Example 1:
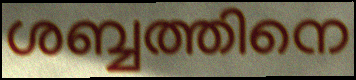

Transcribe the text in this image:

ശബ്ബത്തിനെ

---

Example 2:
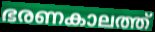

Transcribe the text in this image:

ഭരണകാലത്ത്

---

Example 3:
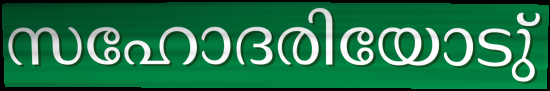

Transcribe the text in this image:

സഹോദരിയോടു്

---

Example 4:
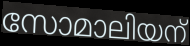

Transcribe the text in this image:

സോമാലിയന്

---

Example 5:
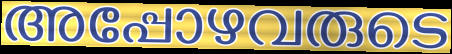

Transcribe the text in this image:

അപ്പോഴവരുടെ